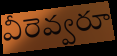
వీరెవ్వరూ